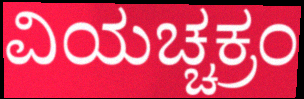
ವಿಯಚ್ಚಕ್ರಂ